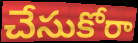
చేసుకోరా